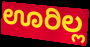
ಊರಿಲ್ಲ